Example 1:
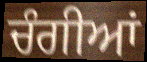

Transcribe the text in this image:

ਚੰਗੀਆਂ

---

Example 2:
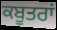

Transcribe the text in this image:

ਕਬੂਤਰਾਂ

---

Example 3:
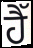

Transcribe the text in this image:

ਹੈੱ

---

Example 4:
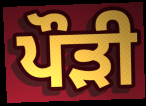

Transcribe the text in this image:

ਪੌੜੀ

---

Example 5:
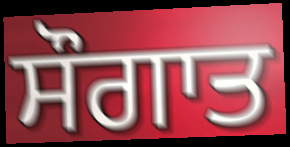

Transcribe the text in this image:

ਸੌਗਾਤ